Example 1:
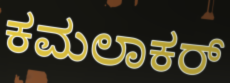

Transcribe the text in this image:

ಕಮಲಾಕರ್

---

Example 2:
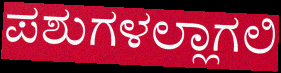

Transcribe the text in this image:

ಪಶುಗಳಲ್ಲಾಗಲಿ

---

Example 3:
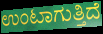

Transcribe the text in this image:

ಉಂಟಾಗುತ್ತಿದೆ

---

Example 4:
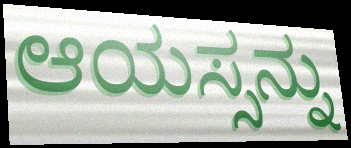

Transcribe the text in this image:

ಆಯಸ್ಸನ್ನು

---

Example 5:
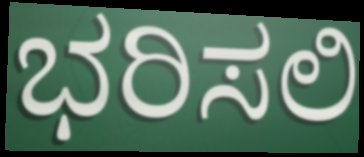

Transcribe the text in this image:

ಭರಿಸಲಿ